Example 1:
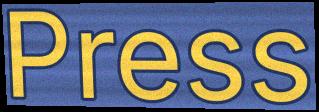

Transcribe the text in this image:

Press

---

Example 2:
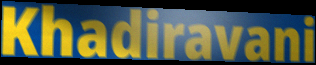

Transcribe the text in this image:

Khadiravani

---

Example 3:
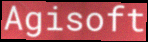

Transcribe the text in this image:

Agisoft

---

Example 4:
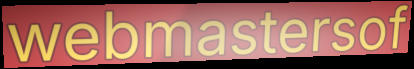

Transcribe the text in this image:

webmastersof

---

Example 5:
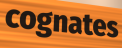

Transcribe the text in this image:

cognates